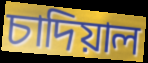
চাদিয়াল